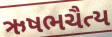
ઋષભચૈત્ય